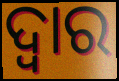
ଦ୍ବାର